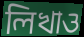
লিখাও